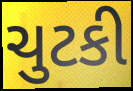
ચુટકી